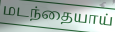
மடந்தையாய்